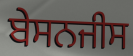
ਬੇਸਨਜੀਸ